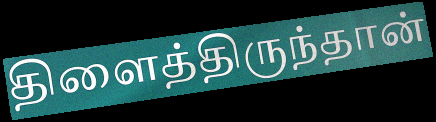
திளைத்திருந்தான்